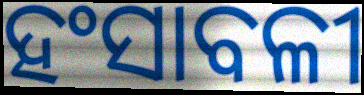
ହଂସାବଳୀ